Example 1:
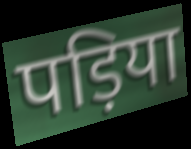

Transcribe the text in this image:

पड़िया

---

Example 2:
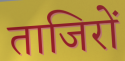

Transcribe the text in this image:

ताजिरों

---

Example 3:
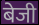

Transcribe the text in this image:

बेजी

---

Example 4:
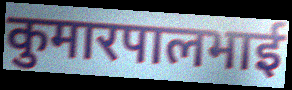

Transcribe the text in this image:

कुमारपालभाई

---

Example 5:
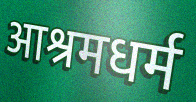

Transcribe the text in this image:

आश्रमधर्म